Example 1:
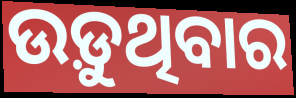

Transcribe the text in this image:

ଉଡ଼ୁଥିବାର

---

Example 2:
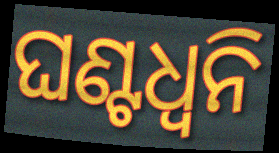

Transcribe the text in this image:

ଘଣ୍ଟଧ୍ୱନି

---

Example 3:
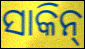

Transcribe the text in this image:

ସାକିନ୍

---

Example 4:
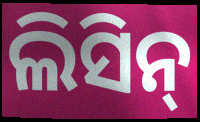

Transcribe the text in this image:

ଲିସିନ୍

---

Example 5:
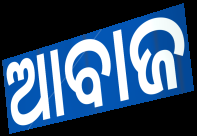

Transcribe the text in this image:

ଆବାଜ